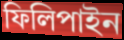
ফিলিপাইন